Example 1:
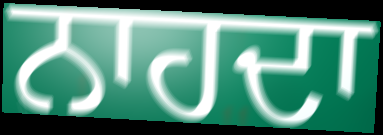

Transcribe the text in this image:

ਨਾਹਦਾ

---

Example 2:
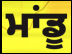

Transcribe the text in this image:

ਮਾਂਡੂ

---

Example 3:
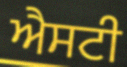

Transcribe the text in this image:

ਐਸਟੀ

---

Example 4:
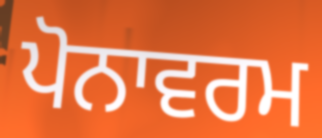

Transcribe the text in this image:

ਪੋਨਾਵਰਮ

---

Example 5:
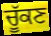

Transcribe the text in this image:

ਚੂੱਕਣ